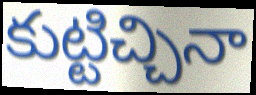
కుట్టిచ్చినా